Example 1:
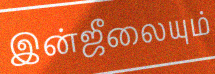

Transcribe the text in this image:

இன்ஜீலையும்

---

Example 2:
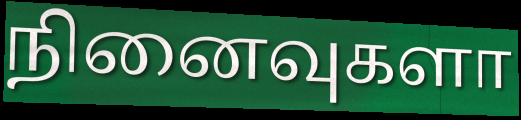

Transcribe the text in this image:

நினைவுகளா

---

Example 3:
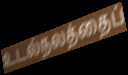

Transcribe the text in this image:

உடல்நலத்தைப்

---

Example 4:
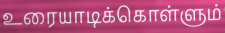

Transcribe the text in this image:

உரையாடிக்கொள்ளும்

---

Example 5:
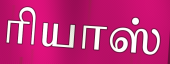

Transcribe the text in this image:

ரியாஸ்